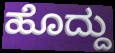
ಹೊದ್ದು